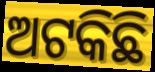
ଅଟକିଛି